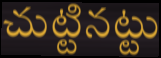
చుట్టినట్టు